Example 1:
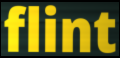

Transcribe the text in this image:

flint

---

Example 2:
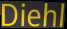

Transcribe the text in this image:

Diehl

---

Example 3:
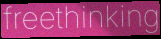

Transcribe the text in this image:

freethinking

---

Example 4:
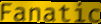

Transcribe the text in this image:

Fanatic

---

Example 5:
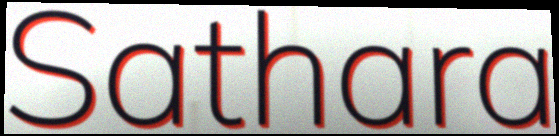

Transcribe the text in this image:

Sathara